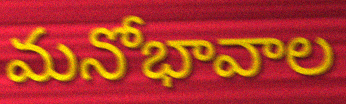
మనోభావాల